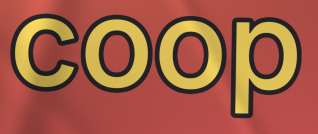
coop